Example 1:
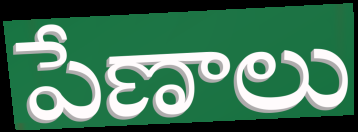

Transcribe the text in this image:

పేణాలు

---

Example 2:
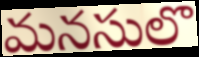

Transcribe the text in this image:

మనసులొ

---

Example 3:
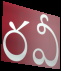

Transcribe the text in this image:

రవీ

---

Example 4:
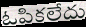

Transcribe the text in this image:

ఓపికలేదు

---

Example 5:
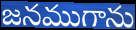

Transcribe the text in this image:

జనముగాను